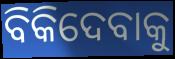
ବିକିଦେବାକୁ